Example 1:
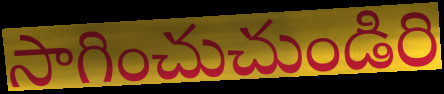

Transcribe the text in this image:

సాగించుచుండిరి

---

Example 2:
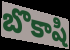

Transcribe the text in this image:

బొకాషి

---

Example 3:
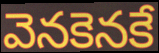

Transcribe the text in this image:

వెనకెనకే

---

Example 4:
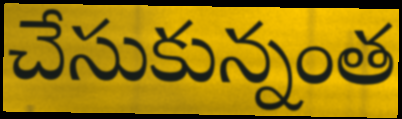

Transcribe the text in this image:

చేసుకున్నంత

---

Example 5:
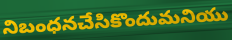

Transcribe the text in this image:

నిబంధనచేసికొందుమనియు